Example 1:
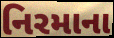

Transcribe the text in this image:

નિરમાના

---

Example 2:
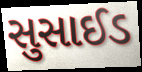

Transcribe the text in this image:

સુસાઈડ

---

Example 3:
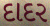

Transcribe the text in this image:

દાદર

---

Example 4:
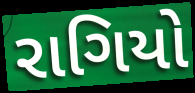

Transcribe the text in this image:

રાગિયો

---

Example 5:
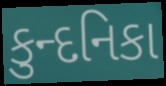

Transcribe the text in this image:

કુન્દનિકા